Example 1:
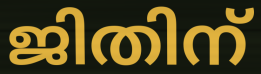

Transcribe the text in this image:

ജിതിന്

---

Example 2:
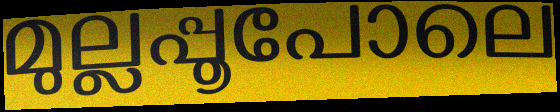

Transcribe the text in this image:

മുല്ലപ്പൂപോലെ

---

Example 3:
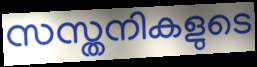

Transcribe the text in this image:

സസ്തനികളുടെ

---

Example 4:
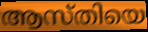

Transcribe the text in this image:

ആസ്തിയെ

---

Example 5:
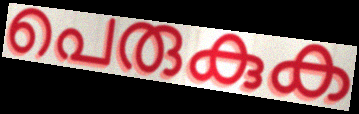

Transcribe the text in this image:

പെരുകുക